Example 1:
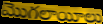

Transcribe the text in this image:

మొగలాయీలు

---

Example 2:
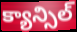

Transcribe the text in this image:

క్యాన్సిల్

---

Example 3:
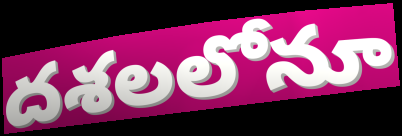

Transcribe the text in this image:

దశలలోనూ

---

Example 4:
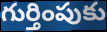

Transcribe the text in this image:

గుర్తింపుకు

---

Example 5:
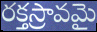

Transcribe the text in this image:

రక్తస్రావమై